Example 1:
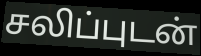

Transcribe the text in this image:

சலிப்புடன்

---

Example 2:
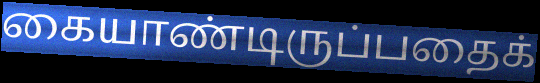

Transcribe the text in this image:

கையாண்டிருப்பதைக்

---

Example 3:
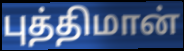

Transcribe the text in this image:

புத்திமான்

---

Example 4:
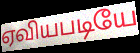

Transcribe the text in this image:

ஏவியபடியே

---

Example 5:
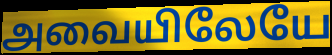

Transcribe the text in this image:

அவையிலேயே